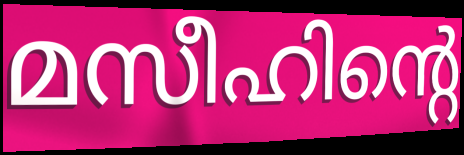
മസീഹിന്റെ